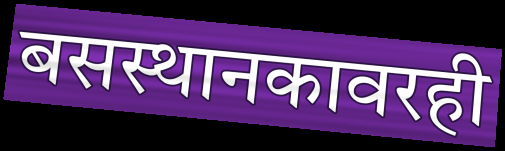
बसस्थानकावरही